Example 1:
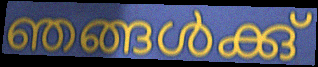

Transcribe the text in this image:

ഞങ്ങൾക്കു്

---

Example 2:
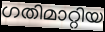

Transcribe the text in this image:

ഗതിമാറ്റിയ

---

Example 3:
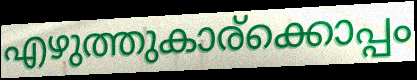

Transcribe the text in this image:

എഴുത്തുകാര്ക്കൊപ്പം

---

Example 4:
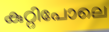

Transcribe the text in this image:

കുറ്റിപോലെ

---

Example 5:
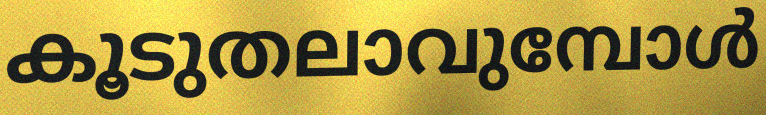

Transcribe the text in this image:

കൂടുതലാവുമ്പോൾ